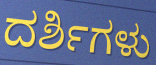
ದರ್ಶಿಗಳು